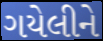
ગયેલીને